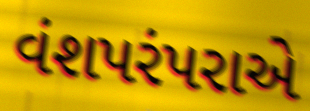
વંશપરંપરાએ